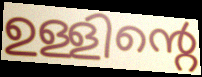
ഉള്ളിന്റെ